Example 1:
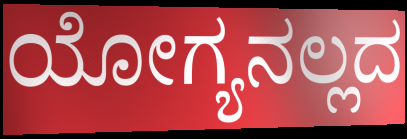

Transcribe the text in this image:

ಯೋಗ್ಯನಲ್ಲದ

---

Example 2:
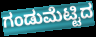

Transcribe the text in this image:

ಗಂಡುಮೆಟ್ಟಿದ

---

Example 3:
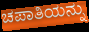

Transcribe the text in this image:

ಚಪಾತಿಯನ್ನು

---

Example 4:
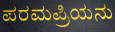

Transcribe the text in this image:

ಪರಮಪ್ರಿಯನು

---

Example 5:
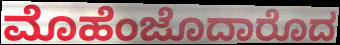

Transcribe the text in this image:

ಮೊಹೆಂಜೊದಾರೊದ